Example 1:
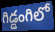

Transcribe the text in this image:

గిడ్డంగిలో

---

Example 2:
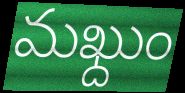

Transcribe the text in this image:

మఖ్దుం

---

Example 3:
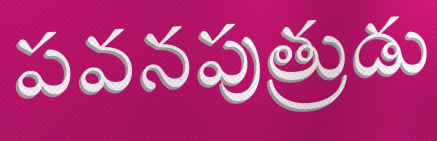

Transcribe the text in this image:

పవనపుత్రుడు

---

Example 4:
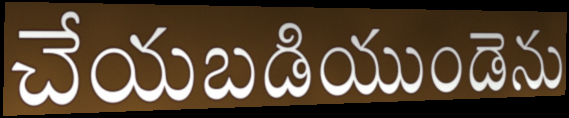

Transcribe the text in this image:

చేయబడియుండెను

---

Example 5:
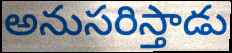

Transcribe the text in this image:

అనుసరిస్తాడు